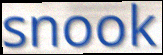
snook